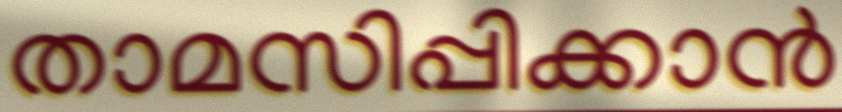
താമസിപ്പിക്കാൻ